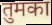
तुमका